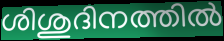
ശിശുദിനത്തിൽ